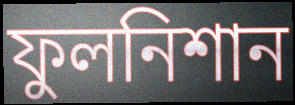
ফুলনিশান